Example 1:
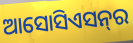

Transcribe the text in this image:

ଆସୋସିଏସନ୍‍ର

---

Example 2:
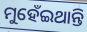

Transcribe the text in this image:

ମୁହେଁଇଥାନ୍ତି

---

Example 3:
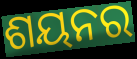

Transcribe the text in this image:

ଶୟନର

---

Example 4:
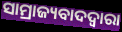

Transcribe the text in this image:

ସାମ୍ରାଜ୍ୟବାଦଦ୍ୱାରା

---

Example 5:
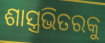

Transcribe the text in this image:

ଶାସ୍ତ୍ରଭିତରକୁ